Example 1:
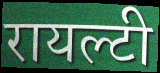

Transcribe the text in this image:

रायल्टी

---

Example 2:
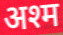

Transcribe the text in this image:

अश्म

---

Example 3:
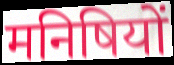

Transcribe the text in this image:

मनिषियों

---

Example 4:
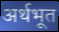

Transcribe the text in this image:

अर्थभूत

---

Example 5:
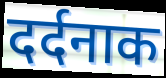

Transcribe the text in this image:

दर्दनाक